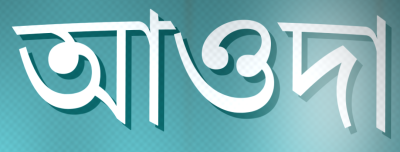
আওদা